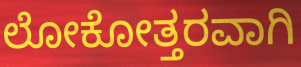
ಲೋಕೋತ್ತರವಾಗಿ